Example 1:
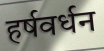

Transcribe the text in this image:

हर्षवर्धन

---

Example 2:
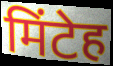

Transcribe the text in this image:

मिंटेह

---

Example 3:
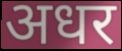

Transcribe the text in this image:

अधर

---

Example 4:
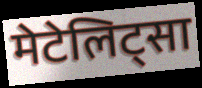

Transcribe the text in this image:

मेटेलिट्सा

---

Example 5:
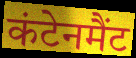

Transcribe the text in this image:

कंटेनमैंट